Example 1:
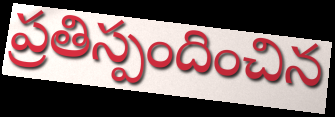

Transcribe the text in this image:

ప్రతిస్పందించిన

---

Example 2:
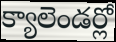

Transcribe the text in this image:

క్యాలెండర్లో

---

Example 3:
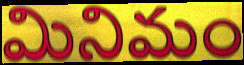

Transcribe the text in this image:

మినిమం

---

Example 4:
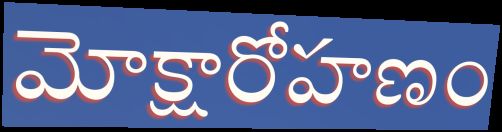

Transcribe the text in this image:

మోక్షారోహణం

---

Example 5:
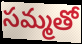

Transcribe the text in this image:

సమ్మతో